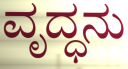
ವೃದ್ಧನು